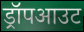
ड्रॉपआउट